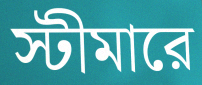
স্টীমারে